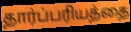
தார்ப்பரியத்தை